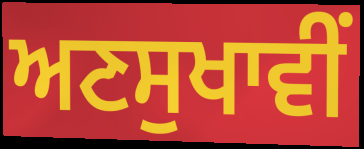
ਅਣਸੁਖਾਵੀਂ